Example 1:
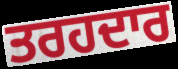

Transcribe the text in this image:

ਤਰਹਦਾਰ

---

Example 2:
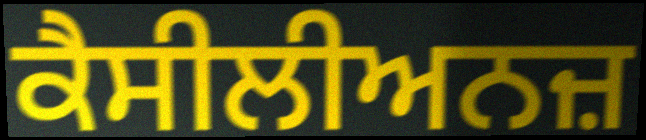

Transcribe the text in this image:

ਕੈਸੀਲੀਅਨਜ਼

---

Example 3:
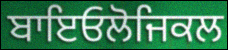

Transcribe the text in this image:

ਬਾਇਓਲੋਜਿਕਲ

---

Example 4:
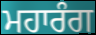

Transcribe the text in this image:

ਮਹਾਰੰਗ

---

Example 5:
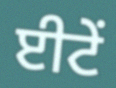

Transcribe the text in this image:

ਈਟੇਂ